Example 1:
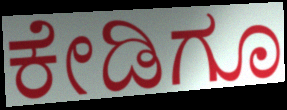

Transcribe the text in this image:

ಕೇಡಿಗೂ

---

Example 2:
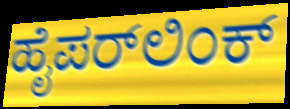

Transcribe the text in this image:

ಹೈಪರ್‌ಲಿಂಕ್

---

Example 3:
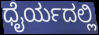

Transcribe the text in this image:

ಧೈರ್ಯದಲ್ಲಿ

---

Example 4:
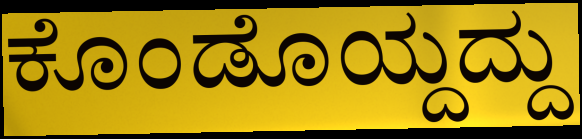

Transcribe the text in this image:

ಕೊಂಡೊಯ್ದದ್ದು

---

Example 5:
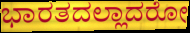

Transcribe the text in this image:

ಭಾರತದಲ್ಲಾದರೋ